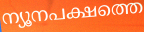
ന്യൂനപക്ഷത്തെ